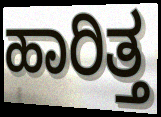
ಹಾರಿತ್ತ